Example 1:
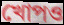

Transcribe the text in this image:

খোপও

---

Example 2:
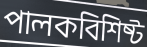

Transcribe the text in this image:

পালকবিশিষ্ট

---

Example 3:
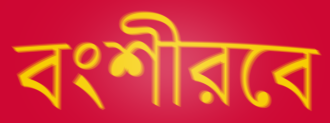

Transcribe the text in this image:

বংশীরবে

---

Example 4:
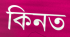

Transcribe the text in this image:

কিনত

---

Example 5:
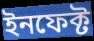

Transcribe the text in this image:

ইনফেক্ট